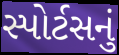
સ્પોર્ટસનું